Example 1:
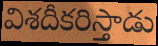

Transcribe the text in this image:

విశదీకరిస్తాడు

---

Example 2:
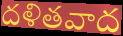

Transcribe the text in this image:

దళితవాద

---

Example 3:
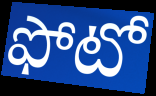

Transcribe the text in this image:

ఫోటో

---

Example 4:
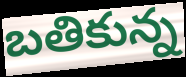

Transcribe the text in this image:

బతికున్న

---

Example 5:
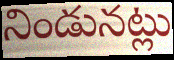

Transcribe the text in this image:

నిండునట్లు